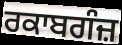
ਰਕਾਬਗੰਜ਼